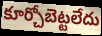
కూర్చోబెట్టలేదు